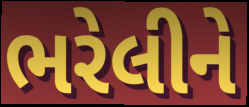
ભરેલીને